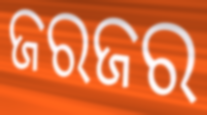
ଜରଜର